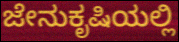
ಜೇನುಕೃಷಿಯಲ್ಲಿ